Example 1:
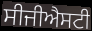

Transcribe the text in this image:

ਸੀਜੀਐਸਟੀ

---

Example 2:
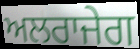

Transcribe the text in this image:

ਅਲਰਾਜੇਗ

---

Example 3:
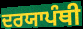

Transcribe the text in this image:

ਦਰਯਾਪੰਥੀ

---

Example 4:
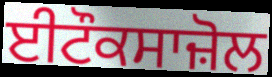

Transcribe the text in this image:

ਈਟੌਕਸਾਜ਼ੋਲ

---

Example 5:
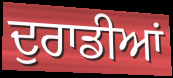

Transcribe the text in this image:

ਦੁਰਾਡੀਆਂ